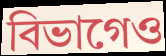
বিভাগেও